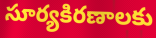
సూర్యకిరణాలకు